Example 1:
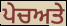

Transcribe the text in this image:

ਪੇਚਅਤੇ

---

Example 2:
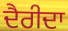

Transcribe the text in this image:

ਦੈਰੀਦਾ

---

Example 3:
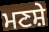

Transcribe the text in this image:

ਮਣਸ਼ੇ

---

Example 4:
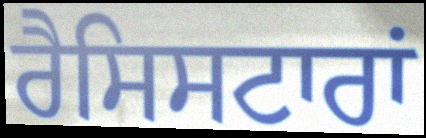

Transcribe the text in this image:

ਰੈਸਿਸਟਾਰਾਂ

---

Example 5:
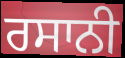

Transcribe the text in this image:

ਰਸਾਨੀ